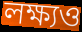
লক্ষ্যও